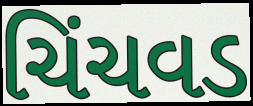
ચિંચવડ